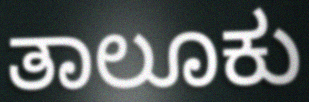
ತಾಲೂಕು